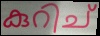
കുറിച്